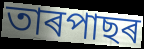
তাৰপাছৰ